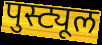
पुस्ट्यूल